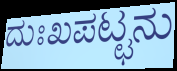
ದುಃಖಪಟ್ಟನು